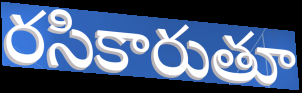
రసికారుతూ